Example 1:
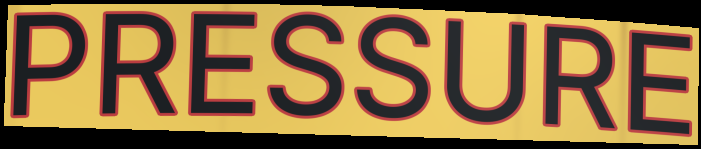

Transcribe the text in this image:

PRESSURE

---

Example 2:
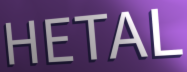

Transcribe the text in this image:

HETAL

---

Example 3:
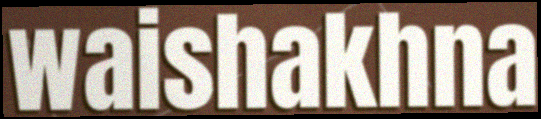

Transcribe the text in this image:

waishakhna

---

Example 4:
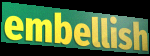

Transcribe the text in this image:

embellish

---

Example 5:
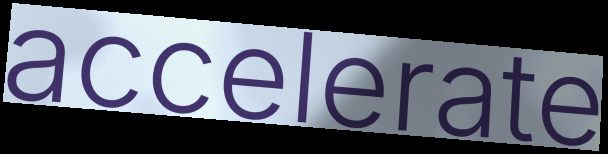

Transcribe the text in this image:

accelerate